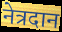
नेत्रदान